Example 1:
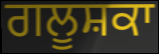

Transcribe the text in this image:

ਗਲੂਸ਼ਕਾ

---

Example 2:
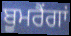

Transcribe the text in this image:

ਬੂਮਰੈਂਗਾਂ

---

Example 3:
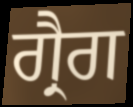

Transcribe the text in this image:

ਗ੍ਰੈਗ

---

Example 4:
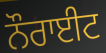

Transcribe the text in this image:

ਨੌਰਾਈਟ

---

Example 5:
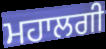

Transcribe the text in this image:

ਮਹਾਲਗੀ